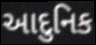
આદુનિક